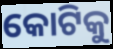
କୋଟିକୁ